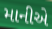
માનીએ